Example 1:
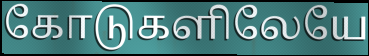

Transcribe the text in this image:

கோடுகளிலேயே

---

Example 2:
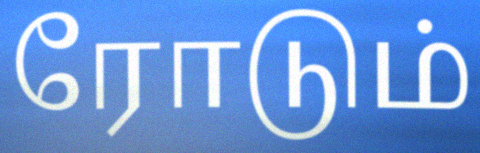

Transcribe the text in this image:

ரோடும்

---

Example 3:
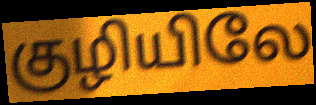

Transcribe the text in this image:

குழியிலே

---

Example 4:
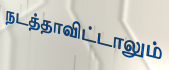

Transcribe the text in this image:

நடத்தாவிட்டாலும்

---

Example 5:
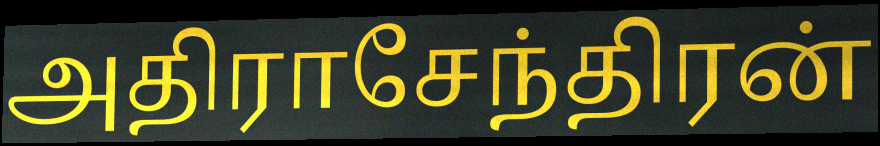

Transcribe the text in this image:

அதிராசேந்திரன்